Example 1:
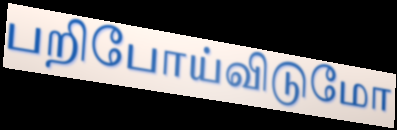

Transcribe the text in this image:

பறிபோய்விடுமோ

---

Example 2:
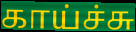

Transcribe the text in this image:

காய்ச்சு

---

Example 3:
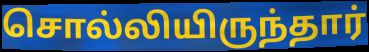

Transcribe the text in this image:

சொல்லியிருந்தார்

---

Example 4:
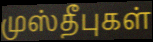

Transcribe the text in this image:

முஸ்தீபுகள்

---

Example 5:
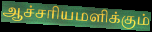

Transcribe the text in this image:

ஆச்சரியமளிக்கும்